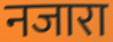
नजारा